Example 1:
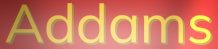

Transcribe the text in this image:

Addams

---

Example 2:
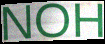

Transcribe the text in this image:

NOH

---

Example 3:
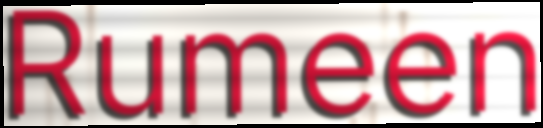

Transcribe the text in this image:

Rumeen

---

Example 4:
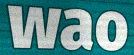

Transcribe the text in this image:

wao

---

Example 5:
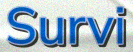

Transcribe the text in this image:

Survi